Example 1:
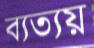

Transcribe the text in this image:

ব্যত্যয়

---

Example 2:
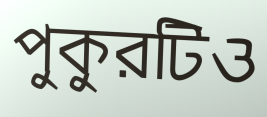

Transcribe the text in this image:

পুকুরটিও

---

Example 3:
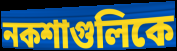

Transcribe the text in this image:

নকশাগুলিকে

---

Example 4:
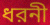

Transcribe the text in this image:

ধরনী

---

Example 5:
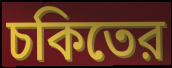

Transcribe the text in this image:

চকিতের